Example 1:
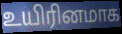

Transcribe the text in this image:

உயிரினமாக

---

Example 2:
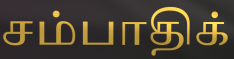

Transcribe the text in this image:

சம்பாதிக்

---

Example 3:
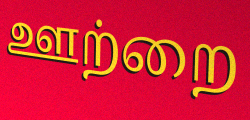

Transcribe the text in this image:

ஊற்றை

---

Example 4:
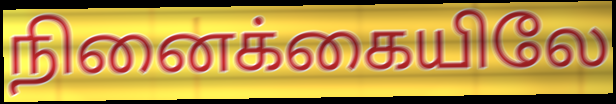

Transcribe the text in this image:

நினைக்கையிலே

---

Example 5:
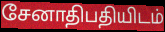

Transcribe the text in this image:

சேனாதிபதியிடம்